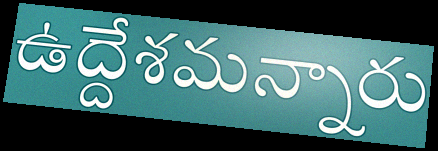
ఉద్దేశమన్నారు